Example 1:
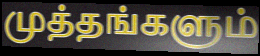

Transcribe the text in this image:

முத்தங்களும்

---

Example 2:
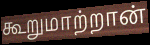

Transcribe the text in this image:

கூறுமாற்றான்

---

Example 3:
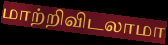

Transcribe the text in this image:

மாற்றிவிடலாமா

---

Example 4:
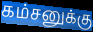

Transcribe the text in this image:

கம்சனுக்கு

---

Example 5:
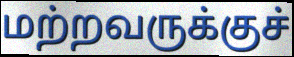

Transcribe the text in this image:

மற்றவருக்குச்